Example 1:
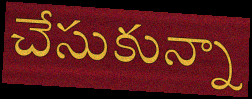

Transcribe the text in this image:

చేసుకున్నా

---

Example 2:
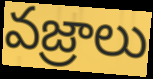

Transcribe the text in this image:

వజ్రాలు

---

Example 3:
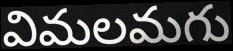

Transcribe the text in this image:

విమలమగు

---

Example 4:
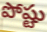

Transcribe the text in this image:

పోష్టు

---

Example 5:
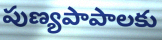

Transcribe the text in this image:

పుణ్యపాపాలకు